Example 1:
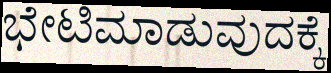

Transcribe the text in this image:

ಭೇಟಿಮಾಡುವುದಕ್ಕೆ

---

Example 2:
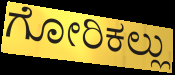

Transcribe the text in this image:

ಗೋರಿಕಲ್ಲು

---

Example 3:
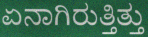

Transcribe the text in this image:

ಏನಾಗಿರುತ್ತಿತ್ತು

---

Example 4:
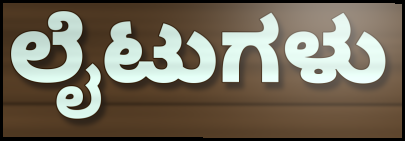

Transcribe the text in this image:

ಲೈಟುಗಳು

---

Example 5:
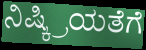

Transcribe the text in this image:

ನಿಷ್ಕ್ರಿಯತೆಗೆ